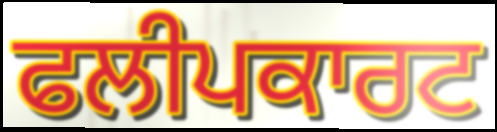
ਫਲੀਪਕਾਰਟ